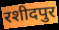
रशीदपुर